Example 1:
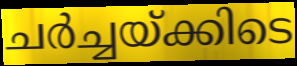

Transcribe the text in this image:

ചർച്ചയ്ക്കിടെ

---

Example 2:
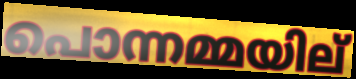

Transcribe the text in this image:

പൊന്നമ്മയില്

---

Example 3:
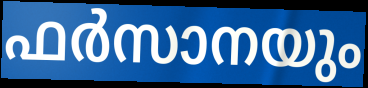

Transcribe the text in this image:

ഫർസാനയും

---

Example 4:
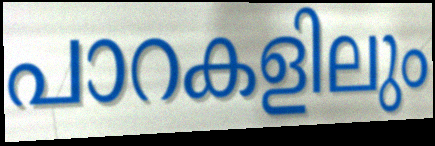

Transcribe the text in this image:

പാറകളിലും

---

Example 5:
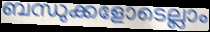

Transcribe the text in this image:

ബന്ധുക്കളോടെല്ലാം